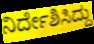
ನಿರ್ದೇಶಿಸಿದ್ದು